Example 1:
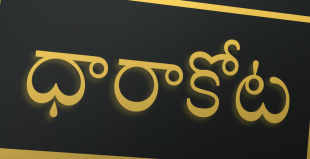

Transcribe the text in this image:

ధారాకోట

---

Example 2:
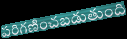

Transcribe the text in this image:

పరిగణించబడుతుంది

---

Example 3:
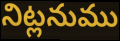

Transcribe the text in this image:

నిట్లనుము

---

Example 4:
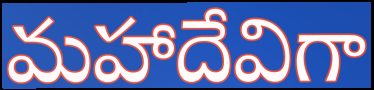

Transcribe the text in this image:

మహాదేవిగా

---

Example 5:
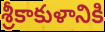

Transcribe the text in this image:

శ్రీకాకుళానికి